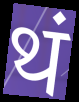
थं